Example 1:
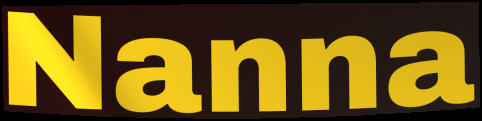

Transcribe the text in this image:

Nanna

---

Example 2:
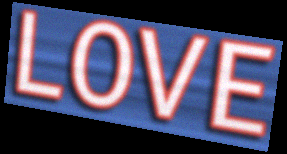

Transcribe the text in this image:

LOVE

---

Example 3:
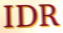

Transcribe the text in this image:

IDR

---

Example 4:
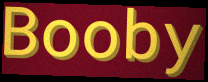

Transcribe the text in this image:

Booby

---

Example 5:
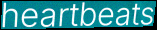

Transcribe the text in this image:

heartbeats